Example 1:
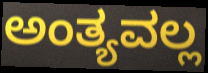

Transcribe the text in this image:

ಅಂತ್ಯವಲ್ಲ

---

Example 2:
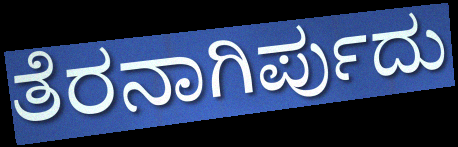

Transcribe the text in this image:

ತೆರನಾಗಿರ್ಪುದು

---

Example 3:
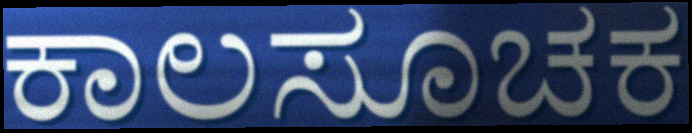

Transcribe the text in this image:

ಕಾಲಸೂಚಕ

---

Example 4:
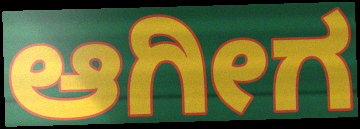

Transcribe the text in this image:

ಆಗೀಗ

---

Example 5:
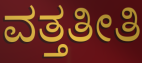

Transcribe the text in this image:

ವತ್ತತೀತಿ